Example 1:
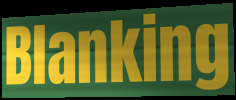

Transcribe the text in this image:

Blanking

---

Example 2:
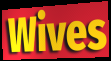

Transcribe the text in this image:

Wives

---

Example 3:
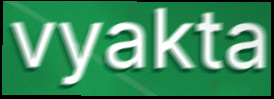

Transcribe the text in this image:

vyakta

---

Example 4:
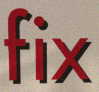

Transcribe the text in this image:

fix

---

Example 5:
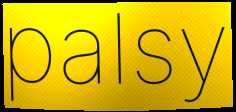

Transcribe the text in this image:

palsy